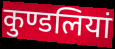
कुण्डलियां